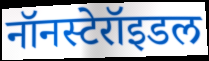
नॉनस्टेरॉइडल